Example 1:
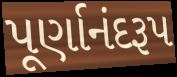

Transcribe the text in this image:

પૂર્ણાનંદરૂપ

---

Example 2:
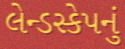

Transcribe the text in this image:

લેન્ડસ્કેપનું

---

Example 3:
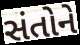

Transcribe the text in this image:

સંતોને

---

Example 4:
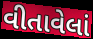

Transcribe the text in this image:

વીતાવેલાં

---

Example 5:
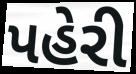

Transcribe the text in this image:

પહેરી